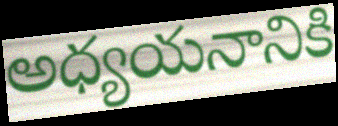
అధ్యయనానికి